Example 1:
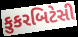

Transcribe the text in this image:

કુકરબિટેસી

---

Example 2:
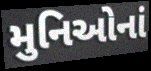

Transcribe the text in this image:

મુનિઓનાં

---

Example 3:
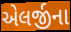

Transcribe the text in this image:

એલર્જીના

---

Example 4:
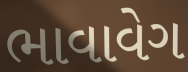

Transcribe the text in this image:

ભાવાવેગ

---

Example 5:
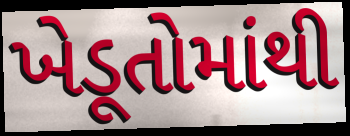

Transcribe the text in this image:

ખેડૂતોમાંથી